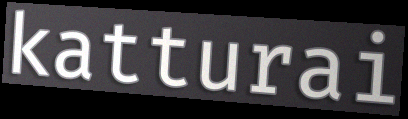
katturai